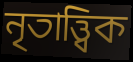
নৃতাত্ত্বিক